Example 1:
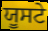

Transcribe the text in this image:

ਯੂਸਟੇ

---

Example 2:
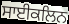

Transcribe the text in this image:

ਸਾਈਕਲਿਨ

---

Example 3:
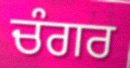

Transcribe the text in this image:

ਚੰਗਰ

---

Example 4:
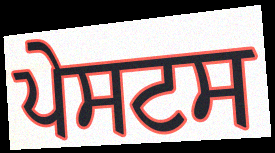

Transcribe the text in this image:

ਪੇਸਟਸ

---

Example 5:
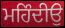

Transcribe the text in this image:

ਮਹਿੰਦੀਉ